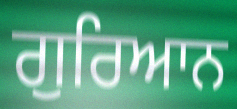
ਗੁਰਿਆਨ